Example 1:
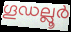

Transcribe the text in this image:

ഗൂഡല്ലൂർ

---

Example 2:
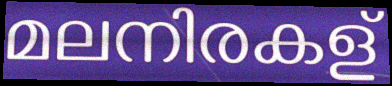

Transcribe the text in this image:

മലനിരകള്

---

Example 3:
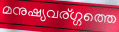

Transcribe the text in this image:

മനുഷ്യവര്ഗ്ഗത്തെ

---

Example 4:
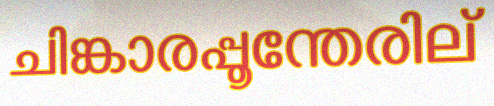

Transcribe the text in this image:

ചിങ്കാരപ്പൂന്തേരില്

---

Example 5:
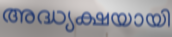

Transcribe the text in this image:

അദ്ധ്യക്ഷയായി